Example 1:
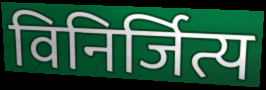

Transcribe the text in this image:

विनिर्जित्य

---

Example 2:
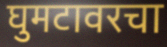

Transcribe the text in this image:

घुमटावरचा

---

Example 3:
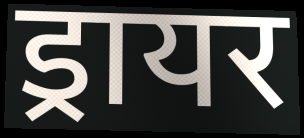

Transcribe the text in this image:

ड्रायर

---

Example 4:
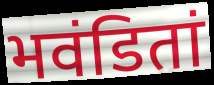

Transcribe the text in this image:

भवंडितां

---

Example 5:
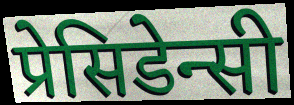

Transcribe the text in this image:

प्रेसिडेन्सी